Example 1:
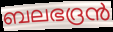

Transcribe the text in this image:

ബലഭദ്രൻ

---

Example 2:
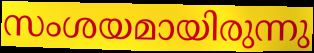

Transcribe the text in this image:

സംശയമായിരുന്നു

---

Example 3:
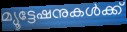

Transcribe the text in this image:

മ്യൂട്ടേഷനുകൾക്ക്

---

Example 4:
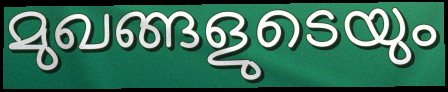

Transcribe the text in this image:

മുഖങ്ങളുടെയും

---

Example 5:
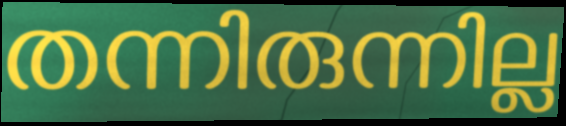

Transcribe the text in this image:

തന്നിരുന്നില്ല